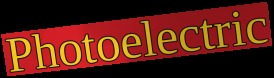
Photoelectric